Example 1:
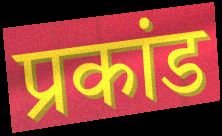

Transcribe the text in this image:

प्रकांड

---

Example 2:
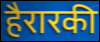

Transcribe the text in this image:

हैरारकी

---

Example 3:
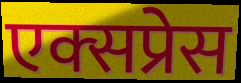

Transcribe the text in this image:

एक्‍सप्रेस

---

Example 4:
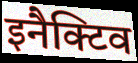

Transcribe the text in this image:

इनैक्टिव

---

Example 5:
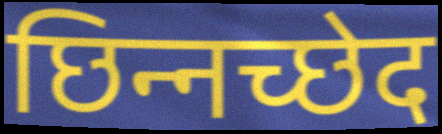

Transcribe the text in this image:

छिन्नच्छेद